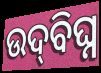
ଉଦ୍‍ବିଘ୍ନ